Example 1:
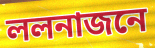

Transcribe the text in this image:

ললনাজনে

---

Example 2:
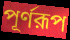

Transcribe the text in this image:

পূর্ণরূপ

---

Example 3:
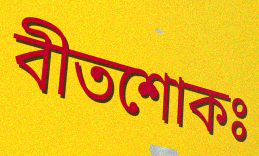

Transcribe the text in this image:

বীতশোকঃ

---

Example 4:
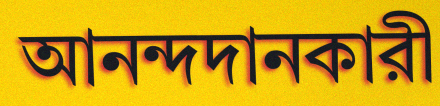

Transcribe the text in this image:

আনন্দদানকারী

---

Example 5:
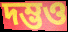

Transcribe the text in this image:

দম্ভও